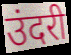
उंदरी